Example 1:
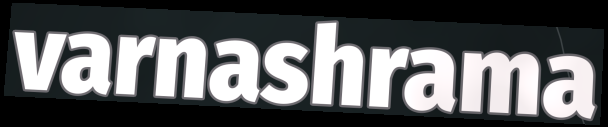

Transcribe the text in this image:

varnashrama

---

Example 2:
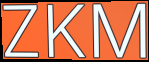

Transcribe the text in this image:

ZKM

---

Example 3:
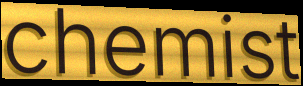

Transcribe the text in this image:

chemist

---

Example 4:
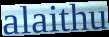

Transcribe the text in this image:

alaithu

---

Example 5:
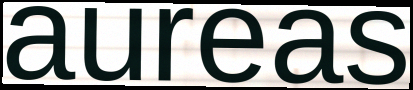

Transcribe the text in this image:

aureas